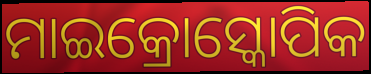
ମାଇକ୍ରୋସ୍କୋପିକ